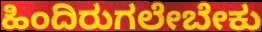
ಹಿಂದಿರುಗಲೇಬೇಕು